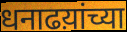
धनाढय़ांच्या